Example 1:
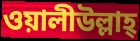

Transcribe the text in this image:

ওয়ালীউল্লাহ্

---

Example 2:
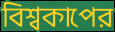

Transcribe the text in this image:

বিশ্বকাপের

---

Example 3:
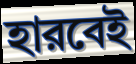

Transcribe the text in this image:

হারবেই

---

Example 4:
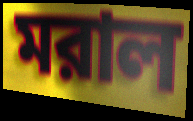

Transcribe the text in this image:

মরাল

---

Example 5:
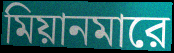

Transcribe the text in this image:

মিয়ানমারে